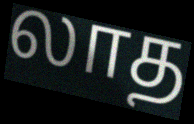
லாத